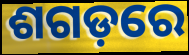
ଶଗଡ଼ରେ